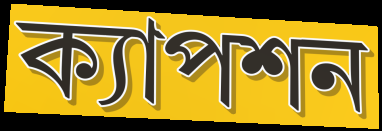
ক্যাপশন